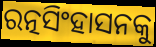
ରତ୍ନସିଂହାସନକୁ